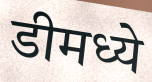
डीमध्ये